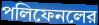
পলিফেনলের